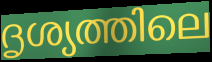
ദൃശ്യത്തിലെ